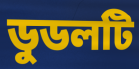
ডুডলটি